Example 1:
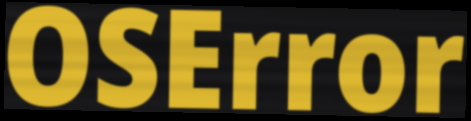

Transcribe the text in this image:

OSError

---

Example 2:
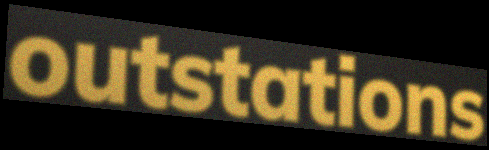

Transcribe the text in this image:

outstations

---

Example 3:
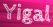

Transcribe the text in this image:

Yigal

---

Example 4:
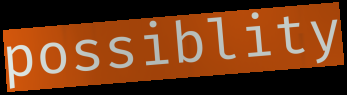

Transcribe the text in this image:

possiblity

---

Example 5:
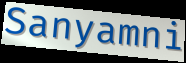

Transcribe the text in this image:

Sanyamni